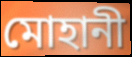
মোহানী